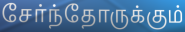
சேர்ந்தோருக்கும்